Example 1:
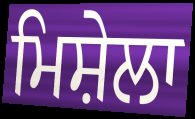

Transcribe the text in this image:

ਮਿਸ਼ੇਲਾ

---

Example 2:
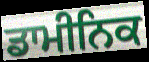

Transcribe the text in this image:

ਡਾਮੀਨਿਕ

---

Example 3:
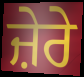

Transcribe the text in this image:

ਜ਼ੇਰੇ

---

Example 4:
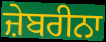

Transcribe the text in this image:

ਜ਼ੇਬਰੀਨਾ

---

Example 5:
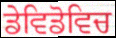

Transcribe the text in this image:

ਡੇਵਿਡੋਵਿਚ